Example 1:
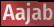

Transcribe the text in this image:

Aajab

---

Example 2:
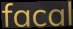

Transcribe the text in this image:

facal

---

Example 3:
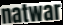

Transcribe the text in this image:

natwar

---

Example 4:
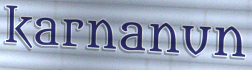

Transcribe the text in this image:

karnanun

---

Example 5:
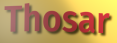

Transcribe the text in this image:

Thosar